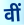
वीं